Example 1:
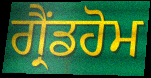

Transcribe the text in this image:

ਗ੍ਰੈਂਡਹੋਮ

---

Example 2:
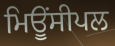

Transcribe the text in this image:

ਮਿਊਂਸੀਪਲ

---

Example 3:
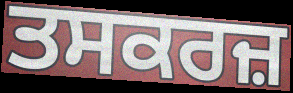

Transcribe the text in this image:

ਤਸਕਰਜ਼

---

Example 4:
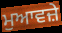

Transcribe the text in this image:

ਮੁਆਵਜ਼ੇ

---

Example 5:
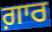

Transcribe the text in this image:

ਗ਼ਾਰ